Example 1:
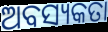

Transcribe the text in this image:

ଅବସ୍ୟକତା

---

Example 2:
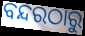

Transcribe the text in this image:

ବନ୍ଦରଠାରୁ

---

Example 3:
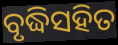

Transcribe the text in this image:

ବୃଦ୍ଧିସହିତ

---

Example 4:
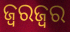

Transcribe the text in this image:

ଜ୍ୱରଜ୍ୱର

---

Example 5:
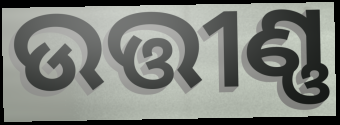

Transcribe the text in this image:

ଉତ୍ତୀଣ୍ଣ